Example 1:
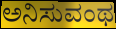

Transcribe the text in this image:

ಅನಿಸುವಂಥ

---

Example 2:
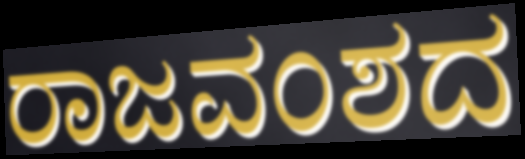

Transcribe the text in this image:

ರಾಜವಂಶದ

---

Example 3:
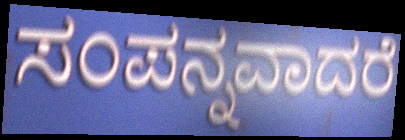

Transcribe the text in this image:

ಸಂಪನ್ನವಾದರೆ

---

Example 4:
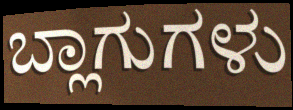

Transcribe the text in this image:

ಬ್ಲಾಗುಗಳು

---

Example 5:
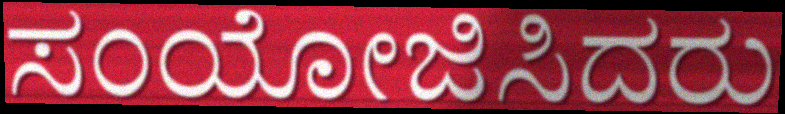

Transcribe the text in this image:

ಸಂಯೋಜಿಸಿದರು